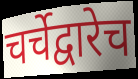
चर्चेद्वारेच